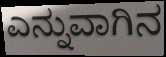
ಎನ್ನುವಾಗಿನ